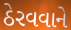
ઠેરવવાને